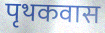
पृथकवास